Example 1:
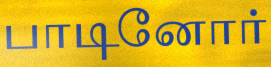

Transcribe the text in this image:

பாடினோர்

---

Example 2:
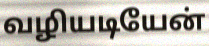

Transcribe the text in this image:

வழியடியேன்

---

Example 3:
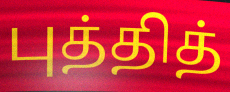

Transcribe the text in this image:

புத்தித்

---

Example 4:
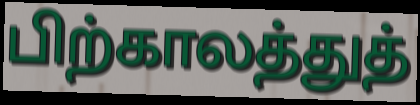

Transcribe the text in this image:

பிற்காலத்துத்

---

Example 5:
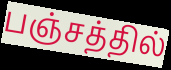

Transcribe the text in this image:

பஞ்சத்தில்